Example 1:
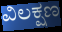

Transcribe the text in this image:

ವಿಲಕ್ಷಣ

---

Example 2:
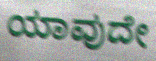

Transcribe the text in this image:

ಯಾವುದೇ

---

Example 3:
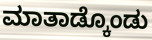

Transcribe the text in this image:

ಮಾತಾಡ್ಕೊಂಡು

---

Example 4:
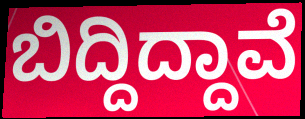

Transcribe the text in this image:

ಬಿದ್ದಿದ್ದಾವೆ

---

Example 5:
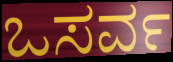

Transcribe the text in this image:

ಒಸರ್ವ